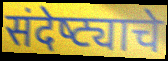
संदेष्ट्याचे